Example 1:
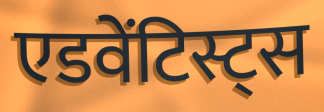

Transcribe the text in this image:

एडवेंटिस्ट्स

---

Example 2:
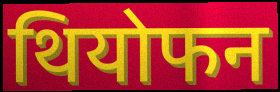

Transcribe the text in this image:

थियोफन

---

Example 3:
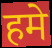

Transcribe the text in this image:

हमे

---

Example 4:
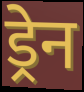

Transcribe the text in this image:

ड्रेन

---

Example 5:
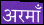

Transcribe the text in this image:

अरमाँ